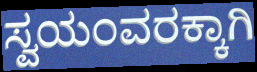
ಸ್ವಯಂವರಕ್ಕಾಗಿ